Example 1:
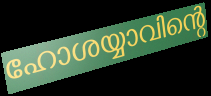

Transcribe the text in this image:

ഹോശയ്യാവിന്റെ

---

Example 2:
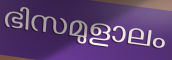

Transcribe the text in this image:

ഭിസമുളാലം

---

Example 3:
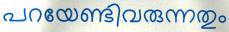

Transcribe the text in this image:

പറയേണ്ടിവരുന്നതും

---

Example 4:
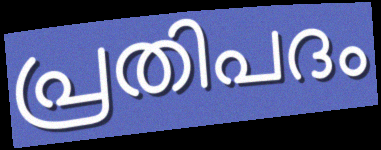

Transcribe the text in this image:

പ്രതിപദം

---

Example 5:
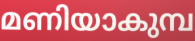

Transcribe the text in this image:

മണിയാകുമ്പ